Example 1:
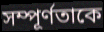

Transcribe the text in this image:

সম্পূর্ণতাকে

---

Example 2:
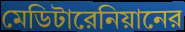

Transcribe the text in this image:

মেডিটারেনিয়ানের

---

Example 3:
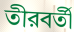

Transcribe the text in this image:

তীরবর্তী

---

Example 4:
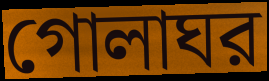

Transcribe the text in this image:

গোলাঘর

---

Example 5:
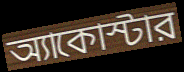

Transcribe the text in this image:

অ্যাকোস্টার